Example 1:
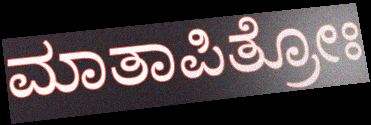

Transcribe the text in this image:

ಮಾತಾಪಿತ್ರೋಃ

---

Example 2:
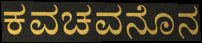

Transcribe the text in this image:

ಕವಚವನೊನ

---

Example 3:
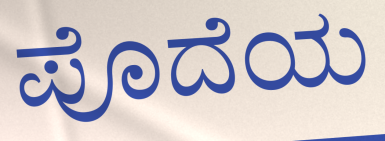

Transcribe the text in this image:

ಪೊದೆಯ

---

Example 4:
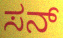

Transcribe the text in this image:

ಸನ್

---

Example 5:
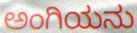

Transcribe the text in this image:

ಅಂಗಿಯನು